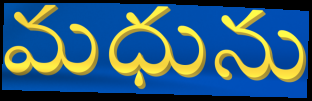
మధును